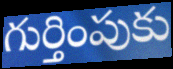
గుర్తింపుకు